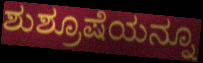
ಶುಶ್ರೂಷೆಯನ್ನೂ